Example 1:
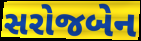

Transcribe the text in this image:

સરોજબેન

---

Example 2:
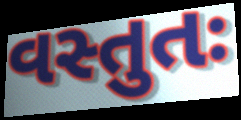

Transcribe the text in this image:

વસ્તુતઃ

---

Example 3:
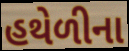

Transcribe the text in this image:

હથેળીના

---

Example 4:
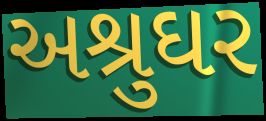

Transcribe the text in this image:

અશ્રુઘર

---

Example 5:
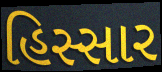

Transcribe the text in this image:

હિસ્સાર